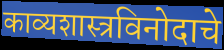
काव्यशास्त्रविनोदाचे